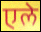
एले